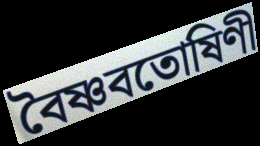
বৈষ্ণবতোষিণী